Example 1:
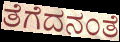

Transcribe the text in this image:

ತೆಗೆದನಂತೆ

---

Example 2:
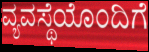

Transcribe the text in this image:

ವ್ಯವಸ್ಥೆಯೊಂದಿಗೆ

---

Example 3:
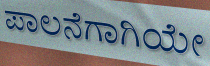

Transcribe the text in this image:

ಪಾಲನೆಗಾಗಿಯೇ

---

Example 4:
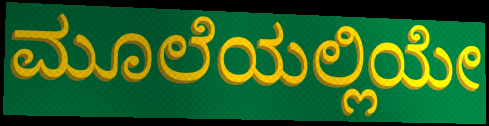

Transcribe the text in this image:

ಮೂಲೆಯಲ್ಲಿಯೇ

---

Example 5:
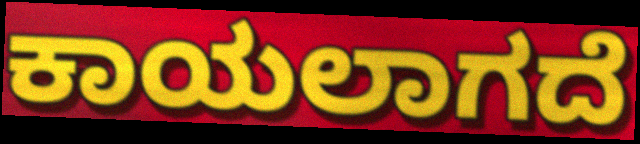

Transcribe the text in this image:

ಕಾಯಲಾಗದೆ